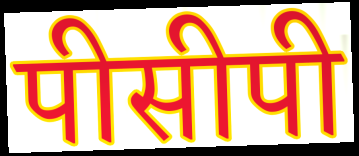
पीसीपी